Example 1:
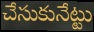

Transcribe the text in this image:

చేసుకునేట్టు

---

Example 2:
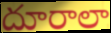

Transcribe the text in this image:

దూరాలా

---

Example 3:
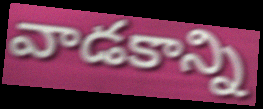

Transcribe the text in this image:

వాడకాన్ని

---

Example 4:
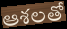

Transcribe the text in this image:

ఆశలతో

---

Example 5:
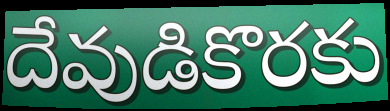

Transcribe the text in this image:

దేవుడికొరకు